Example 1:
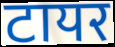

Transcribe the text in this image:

टायर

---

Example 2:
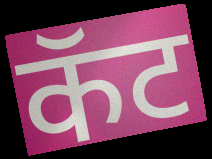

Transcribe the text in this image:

कॅट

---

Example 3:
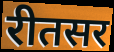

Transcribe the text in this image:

रीतसर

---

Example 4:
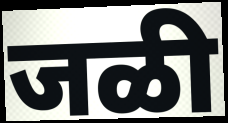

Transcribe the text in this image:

जळी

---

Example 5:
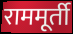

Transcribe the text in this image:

राममूर्ती